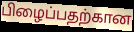
பிழைப்பதற்கான